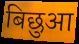
बिछुआ